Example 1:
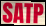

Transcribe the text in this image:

SATP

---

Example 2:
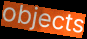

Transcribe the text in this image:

objects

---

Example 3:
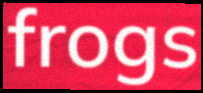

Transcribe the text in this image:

frogs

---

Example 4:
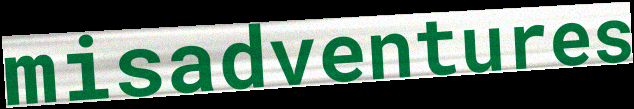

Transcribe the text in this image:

misadventures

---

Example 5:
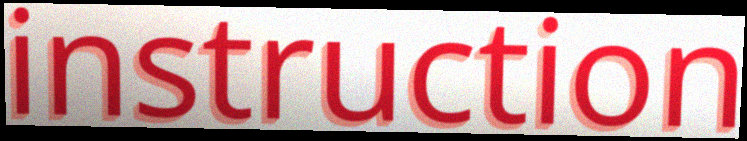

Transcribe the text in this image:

instruction